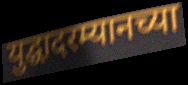
युद्धादरम्यानच्या